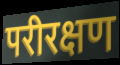
परीरक्षण